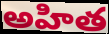
అహిత